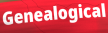
Genealogical